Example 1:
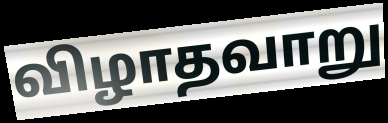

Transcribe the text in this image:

விழாதவாறு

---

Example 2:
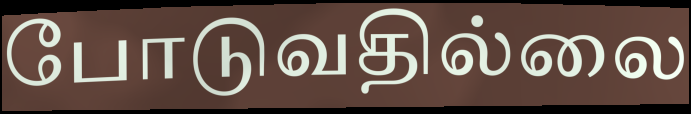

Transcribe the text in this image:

போடுவதில்லை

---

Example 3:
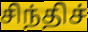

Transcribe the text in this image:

சிந்திச்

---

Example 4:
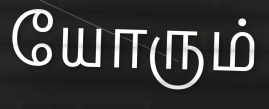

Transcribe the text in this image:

யோரும்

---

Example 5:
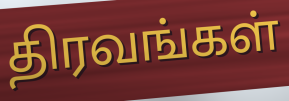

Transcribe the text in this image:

திரவங்கள்